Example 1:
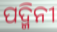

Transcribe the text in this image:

ପଦ୍ମିନୀ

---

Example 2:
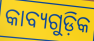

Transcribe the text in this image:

କାବ୍ୟଗୁଡ଼ିକ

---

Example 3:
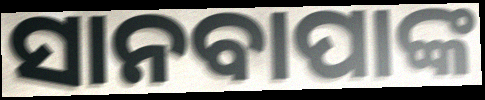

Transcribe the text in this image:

ସାନବାପାଙ୍କ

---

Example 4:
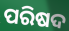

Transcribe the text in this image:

ପରିଷଦ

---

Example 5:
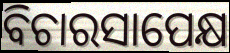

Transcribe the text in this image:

ବିଚାରସାପେକ୍ଷ